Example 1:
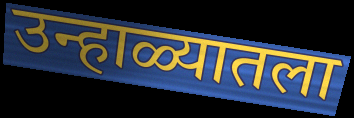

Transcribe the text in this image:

उन्हाळ्यातला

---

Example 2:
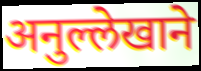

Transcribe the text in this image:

अनुल्लेखाने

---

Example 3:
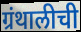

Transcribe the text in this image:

ग्रंथालीची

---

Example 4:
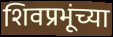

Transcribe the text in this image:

शिवप्रभूंच्या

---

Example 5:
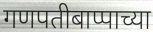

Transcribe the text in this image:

गणपतीबाप्पाच्या